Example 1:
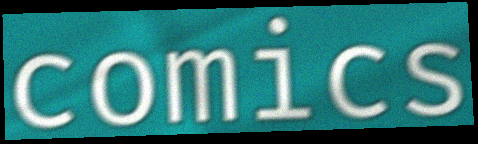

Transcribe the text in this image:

comics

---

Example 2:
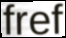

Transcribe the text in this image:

fref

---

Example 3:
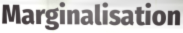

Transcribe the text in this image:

Marginalisation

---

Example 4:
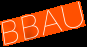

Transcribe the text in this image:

BBAU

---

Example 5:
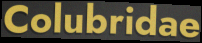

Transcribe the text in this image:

Colubridae